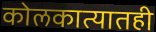
कोलकात्यातही